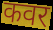
कवर